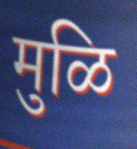
मुळि